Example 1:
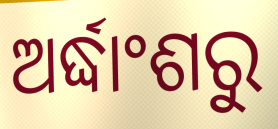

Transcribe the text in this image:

ଅର୍ଦ୍ଧାଂଶରୁ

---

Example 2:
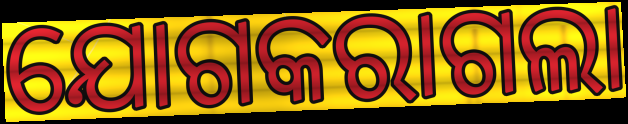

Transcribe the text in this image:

ଯୋଗକରାଗଲା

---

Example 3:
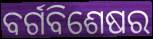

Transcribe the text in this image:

ବର୍ଗବିଶେଷର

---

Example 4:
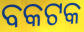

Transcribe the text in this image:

ବକଟକ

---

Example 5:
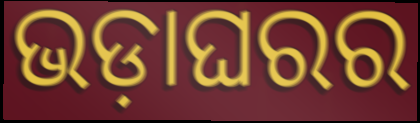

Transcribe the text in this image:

ଭଡ଼ାଘରର